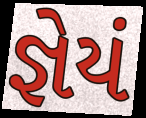
જ્ઞેયં